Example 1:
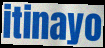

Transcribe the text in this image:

itinayo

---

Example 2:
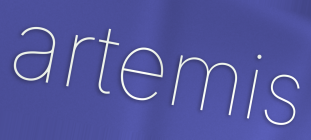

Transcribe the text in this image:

artemis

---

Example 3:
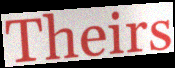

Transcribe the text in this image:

Theirs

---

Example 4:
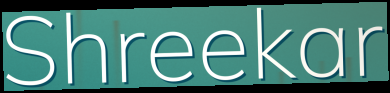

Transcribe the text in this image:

Shreekar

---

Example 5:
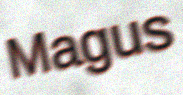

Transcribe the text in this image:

Magus